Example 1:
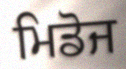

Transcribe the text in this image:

ਮਿਡੋਜ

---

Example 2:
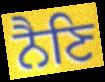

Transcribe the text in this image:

ਨੈਣਿ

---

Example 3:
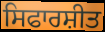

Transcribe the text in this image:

ਸਿਫਾਰਸ਼ੀਤ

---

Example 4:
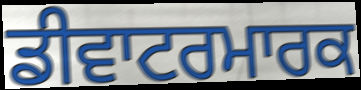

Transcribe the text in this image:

ਡੀਵਾਟਰਮਾਰਕ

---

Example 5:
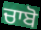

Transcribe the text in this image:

ਚਾਬੋ